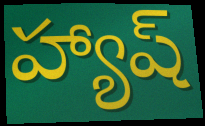
హ్యాష్